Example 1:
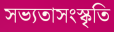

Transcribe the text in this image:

সভ্যতাসংস্কৃতি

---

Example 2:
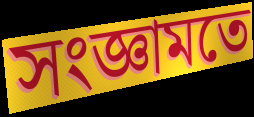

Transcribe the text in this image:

সংজ্ঞামতে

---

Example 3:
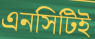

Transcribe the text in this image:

এনসিটিই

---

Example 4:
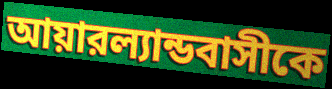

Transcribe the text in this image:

আয়ারল্যান্ডবাসীকে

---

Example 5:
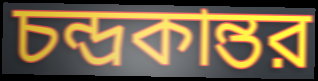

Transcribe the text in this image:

চন্দ্রকান্তর